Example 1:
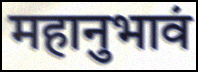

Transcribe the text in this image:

महानुभावं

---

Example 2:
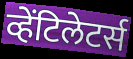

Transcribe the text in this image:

व्हेंटिलेटर्स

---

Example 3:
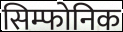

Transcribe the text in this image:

सिम्फोनिक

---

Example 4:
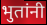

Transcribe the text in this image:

भुतांनी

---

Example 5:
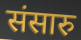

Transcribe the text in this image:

संसारु